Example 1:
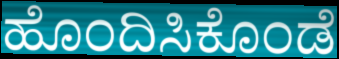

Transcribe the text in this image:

ಹೊಂದಿಸಿಕೊಂಡೆ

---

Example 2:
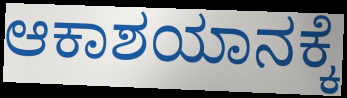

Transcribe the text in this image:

ಆಕಾಶಯಾನಕ್ಕೆ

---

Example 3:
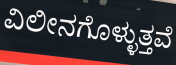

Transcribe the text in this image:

ವಿಲೀನಗೊಳ್ಳುತ್ತವೆ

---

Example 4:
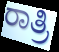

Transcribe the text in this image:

ರಾತ್ರಿ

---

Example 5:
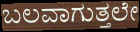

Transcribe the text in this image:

ಬಲವಾಗುತ್ತಲೇ